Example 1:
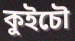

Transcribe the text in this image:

কুইচৌ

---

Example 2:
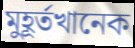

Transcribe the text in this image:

মুহূর্তখানেক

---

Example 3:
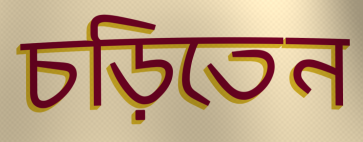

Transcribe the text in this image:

চড়িতেন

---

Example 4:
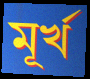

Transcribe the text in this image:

মূর্খ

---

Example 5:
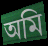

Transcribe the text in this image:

অমি